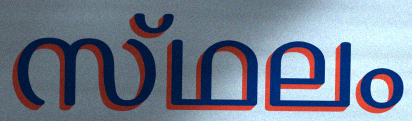
സ്‌ഥലം